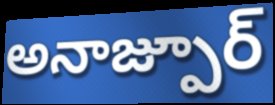
అనాజ్పూర్